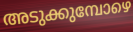
അടുക്കുമ്പോഴെ